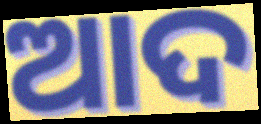
ଆଦ